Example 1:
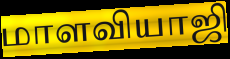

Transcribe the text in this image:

மாளவியாஜி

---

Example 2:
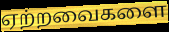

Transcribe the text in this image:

ஏற்றவைகளை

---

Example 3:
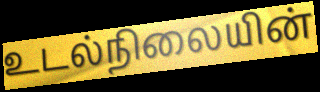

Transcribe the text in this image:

உடல்நிலையின்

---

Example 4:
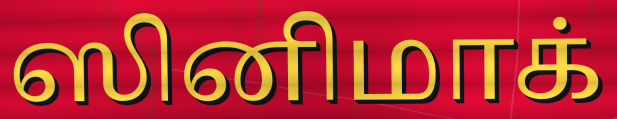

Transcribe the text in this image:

ஸினிமாக்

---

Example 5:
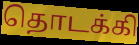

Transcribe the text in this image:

தொடக்கி